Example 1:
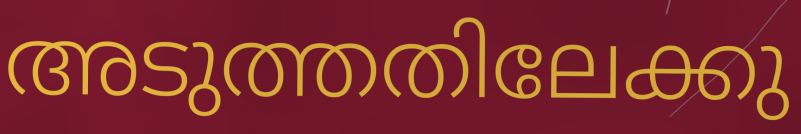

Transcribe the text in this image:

അടുത്തതിലേക്കു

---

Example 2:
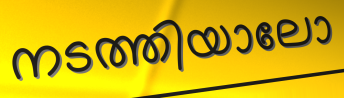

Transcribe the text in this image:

നടത്തിയാലോ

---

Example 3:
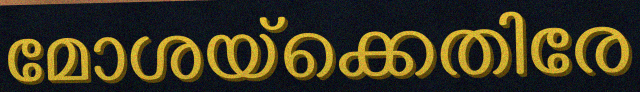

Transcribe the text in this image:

മോശയ്‌ക്കെതിരേ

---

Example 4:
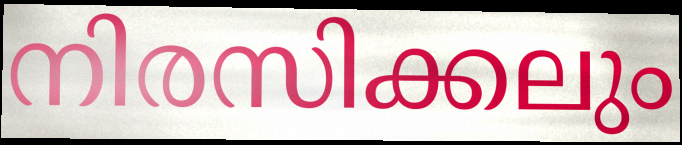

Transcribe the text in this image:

നിരസിക്കലും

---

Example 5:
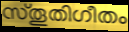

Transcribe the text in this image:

സ്തൂതിഗീതം